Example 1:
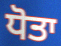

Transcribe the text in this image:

ਧੋਤਾ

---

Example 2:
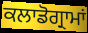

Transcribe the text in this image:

ਕਲਾਡੋਗ੍ਰਾਮਾਂ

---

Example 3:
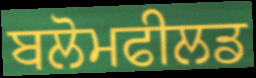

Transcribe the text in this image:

ਬਲੋਮਫੀਲਡ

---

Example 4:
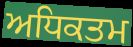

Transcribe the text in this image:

ਅਧਿਕਤਮ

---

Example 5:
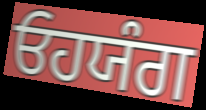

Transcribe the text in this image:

ਓਹਯੰਗ